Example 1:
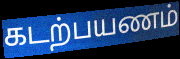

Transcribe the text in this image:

கடற்பயணம்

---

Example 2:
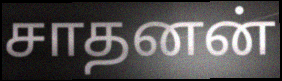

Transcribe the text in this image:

சாதனன்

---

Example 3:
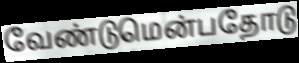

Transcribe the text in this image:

வேண்டுமென்பதோடு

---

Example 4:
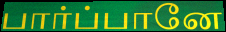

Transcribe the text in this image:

பார்ப்பானே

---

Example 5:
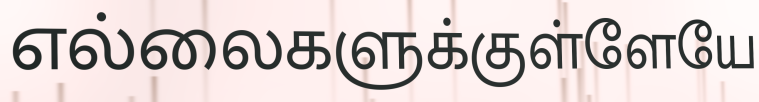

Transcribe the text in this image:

எல்லைகளுக்குள்ளேயே